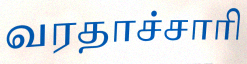
வரதாச்சாரி